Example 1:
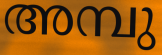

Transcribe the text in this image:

അമ്പു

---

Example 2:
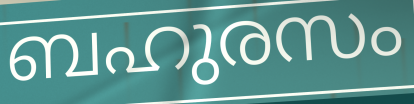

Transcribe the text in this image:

ബഹുരസം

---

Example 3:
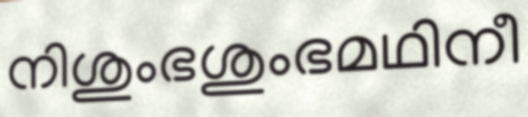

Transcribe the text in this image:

നിശുംഭശുംഭമഥിനീ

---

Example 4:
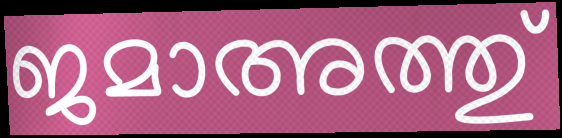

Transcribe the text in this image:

ജമാഅത്തു്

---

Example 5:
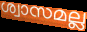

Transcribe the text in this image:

ശ്വാസമല്ല